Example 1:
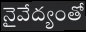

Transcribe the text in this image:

నైవేద్యంతో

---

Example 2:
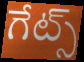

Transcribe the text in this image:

గేట్స్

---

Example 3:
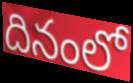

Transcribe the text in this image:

దినంలో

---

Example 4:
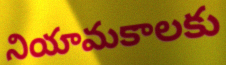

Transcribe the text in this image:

నియామకాలకు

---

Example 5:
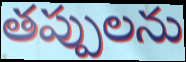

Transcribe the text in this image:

తప్పులను